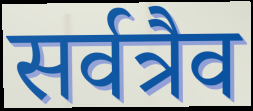
सर्वत्रैव